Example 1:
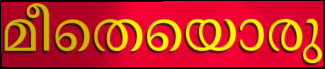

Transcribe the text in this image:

മീതെയൊരു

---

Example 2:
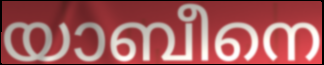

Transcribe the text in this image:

യാബീനെ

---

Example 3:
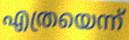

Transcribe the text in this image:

എത്രയെന്ന്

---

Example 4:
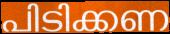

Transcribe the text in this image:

പിടിക്കണ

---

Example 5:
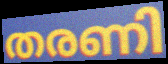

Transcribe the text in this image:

തരണി